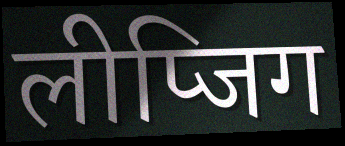
लीप्जिग